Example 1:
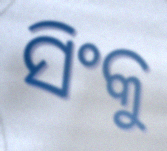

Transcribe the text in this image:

ସିଂକୁ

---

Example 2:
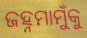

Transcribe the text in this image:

ଜହ୍ନମାମୁଁକୁ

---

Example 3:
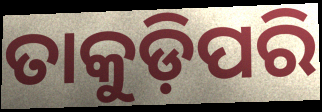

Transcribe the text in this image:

ତାକୁଡ଼ିପରି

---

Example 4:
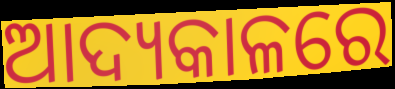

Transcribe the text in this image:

ଆଦ୍ୟକାଳରେ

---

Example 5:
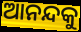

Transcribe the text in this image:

ଆନନ୍ଦକୁ